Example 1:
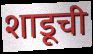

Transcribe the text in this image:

शाडूची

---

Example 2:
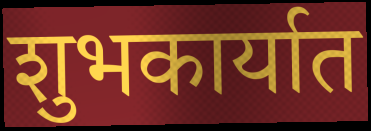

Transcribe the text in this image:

शुभकार्यात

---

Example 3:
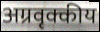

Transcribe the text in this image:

अग्रवृक्कीय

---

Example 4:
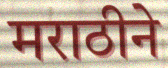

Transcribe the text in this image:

मराठीने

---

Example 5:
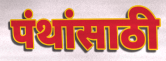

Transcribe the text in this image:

पंथांसाठी